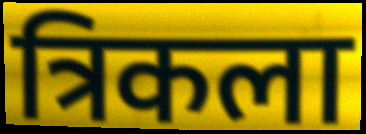
त्रिकला